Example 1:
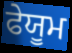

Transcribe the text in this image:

ਫੇਯੂਮ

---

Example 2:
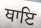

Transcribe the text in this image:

ਥਾਇ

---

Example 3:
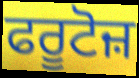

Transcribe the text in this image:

ਫਰੂਟੋਜ਼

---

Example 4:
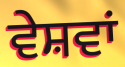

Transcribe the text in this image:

ਵੇਸ਼ਵਾਂ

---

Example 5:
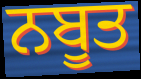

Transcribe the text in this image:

ਨਬੂਤ